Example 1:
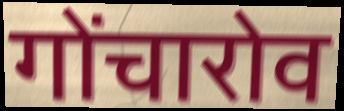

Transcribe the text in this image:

गोंचारोव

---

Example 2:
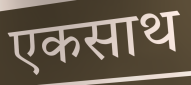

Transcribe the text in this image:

एकसाथ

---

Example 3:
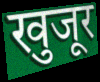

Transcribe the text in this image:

खुजूर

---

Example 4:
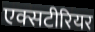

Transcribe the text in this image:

एक्सटीरियर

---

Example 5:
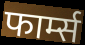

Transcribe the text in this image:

फार्म्स